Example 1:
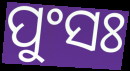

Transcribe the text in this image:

ପୁଂସଃ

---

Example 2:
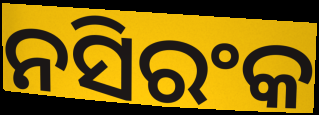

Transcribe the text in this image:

ନସିରଂକ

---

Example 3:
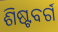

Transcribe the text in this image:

ଶିଷ୍ଟବର୍ଗ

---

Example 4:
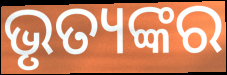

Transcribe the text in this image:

ଭୃତ୍ୟଙ୍କର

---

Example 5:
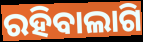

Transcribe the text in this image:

ରହିବାଲାଗି